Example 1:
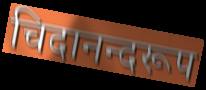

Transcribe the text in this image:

चिदानन्दरूप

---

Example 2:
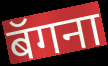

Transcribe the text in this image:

बॅगना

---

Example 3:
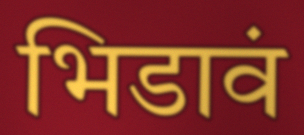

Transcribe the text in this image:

भिडावं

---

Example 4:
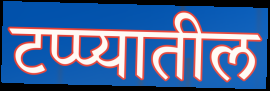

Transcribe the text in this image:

टप्प्यातील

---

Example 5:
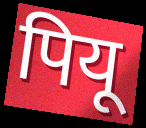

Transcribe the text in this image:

पियू